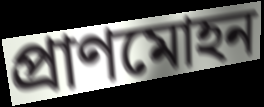
প্রাণমোহন